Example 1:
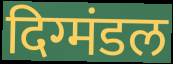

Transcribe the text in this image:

दिग्मंडल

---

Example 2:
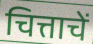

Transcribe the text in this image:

चित्ताचें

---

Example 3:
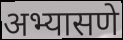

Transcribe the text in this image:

अभ्यासणे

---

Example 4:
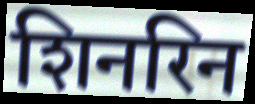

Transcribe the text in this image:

शिनरिन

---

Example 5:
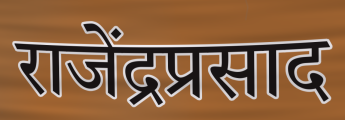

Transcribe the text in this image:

राजेंद्रप्रसाद